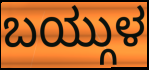
ಬಯ್ಗುಳ